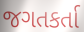
જગતકર્તા